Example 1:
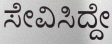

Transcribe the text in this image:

ಸೇವಿಸಿದ್ದೇ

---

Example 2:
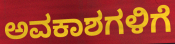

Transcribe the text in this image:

ಅವಕಾಶಗಳಿಗೆ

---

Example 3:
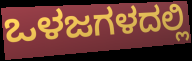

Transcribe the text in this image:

ಒಳಜಗಳದಲ್ಲಿ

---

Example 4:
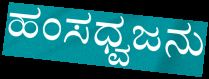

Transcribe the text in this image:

ಹಂಸಧ್ವಜನು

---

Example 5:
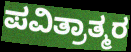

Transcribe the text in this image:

ಪವಿತ್ರಾತ್ಮರ